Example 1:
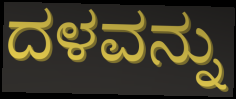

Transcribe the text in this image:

ದಳವನ್ನು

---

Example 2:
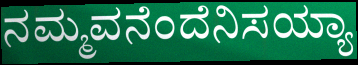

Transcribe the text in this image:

ನಮ್ಮವನೆಂದೆನಿಸಯ್ಯಾ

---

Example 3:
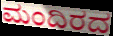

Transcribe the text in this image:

ಮಂದಿರದ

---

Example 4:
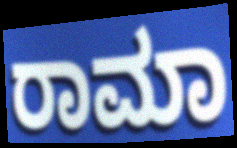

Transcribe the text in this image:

ರಾಮಾ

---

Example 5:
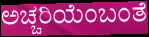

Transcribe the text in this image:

ಅಚ್ಚರಿಯೆಂಬಂತೆ